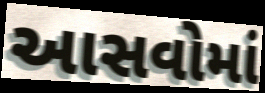
આસવોમાં